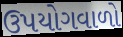
ઉપયોગવાળો